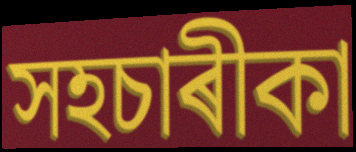
সহচাৰীকা